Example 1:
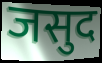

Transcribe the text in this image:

जसुद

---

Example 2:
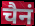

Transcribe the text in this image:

चैनं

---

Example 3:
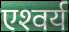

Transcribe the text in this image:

एश्‍वर्य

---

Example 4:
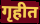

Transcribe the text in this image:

गृहीत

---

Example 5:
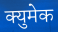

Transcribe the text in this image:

क्युमेक